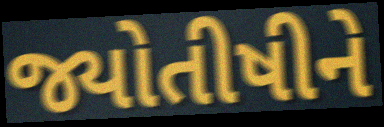
જ્યોતીષીને